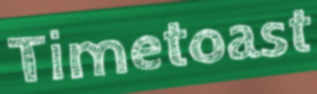
Timetoast